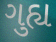
ગુહ્ય